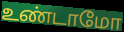
உண்டாமோ